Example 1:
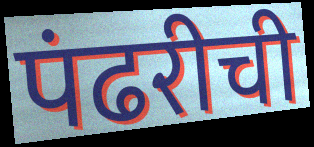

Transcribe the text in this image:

पंढरीची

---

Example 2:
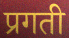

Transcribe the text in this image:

प्रगती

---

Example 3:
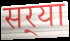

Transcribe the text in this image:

सर्या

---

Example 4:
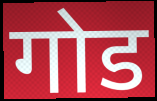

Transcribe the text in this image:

गोड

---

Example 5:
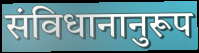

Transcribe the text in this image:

संविधानानुरूप